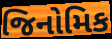
જિનોમિક